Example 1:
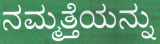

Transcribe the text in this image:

ನಮ್ಮತ್ತೆಯನ್ನು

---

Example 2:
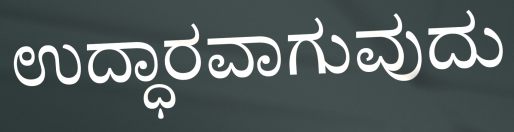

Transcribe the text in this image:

ಉದ್ಧಾರವಾಗುವುದು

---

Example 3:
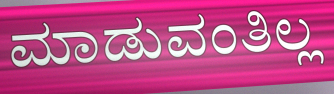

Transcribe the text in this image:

ಮಾಡುವಂತಿಲ್ಲ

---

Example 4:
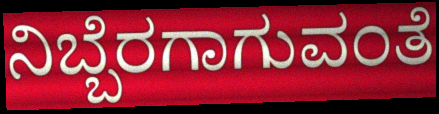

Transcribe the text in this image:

ನಿಬ್ಬೆರಗಾಗುವಂತೆ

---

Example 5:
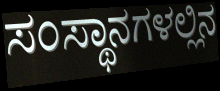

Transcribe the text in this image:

ಸಂಸ್ಥಾನಗಳಲ್ಲಿನ